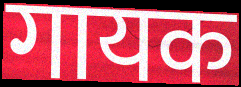
गायक